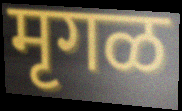
मृगळ